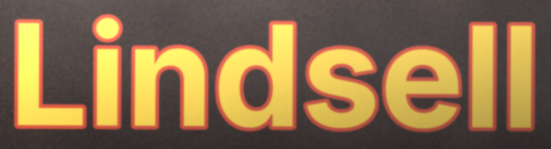
Lindsell